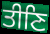
ਤੀਣਿ